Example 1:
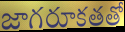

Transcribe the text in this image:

జాగరూకతతో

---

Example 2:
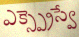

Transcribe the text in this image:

ఎక్స్ప్రెస్వే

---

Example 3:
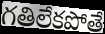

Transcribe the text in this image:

గతిలేకపోతే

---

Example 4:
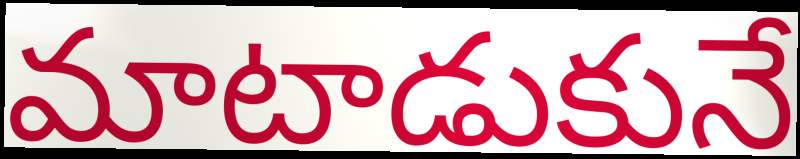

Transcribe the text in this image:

మాటాడుకునే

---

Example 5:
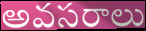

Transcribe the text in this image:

అవసరాలు